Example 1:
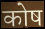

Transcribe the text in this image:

कोष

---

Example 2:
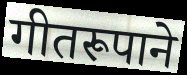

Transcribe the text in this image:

गीतरूपाने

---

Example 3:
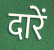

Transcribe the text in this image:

दारें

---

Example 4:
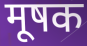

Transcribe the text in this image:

मूषक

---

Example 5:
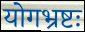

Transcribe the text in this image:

योगभ्रष्टः